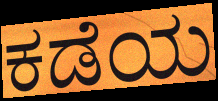
ಕಡೆಯ